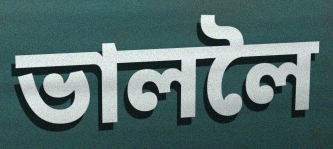
ভাললৈ